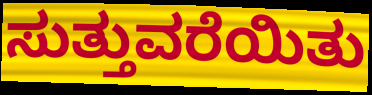
ಸುತ್ತುವರೆಯಿತು